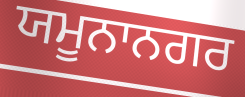
ਯਮੂਨਾਨਗਰ